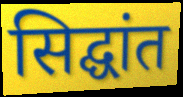
सिद्घांत